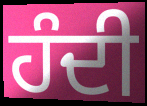
ਹੰਦੀ